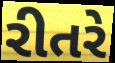
રીતરે